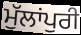
ਮੁੱਲਾਂਪੁਰੀ